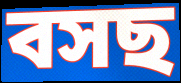
বসছ